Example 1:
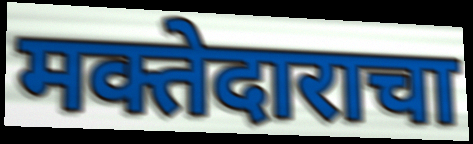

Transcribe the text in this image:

मक्तेदाराचा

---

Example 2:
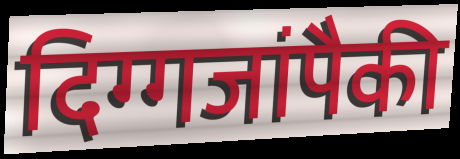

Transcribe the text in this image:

दिग्गजांपैकी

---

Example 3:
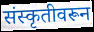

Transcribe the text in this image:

संस्कृतीवरून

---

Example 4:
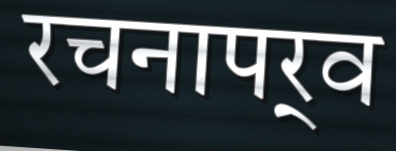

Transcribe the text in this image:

रचनापर्व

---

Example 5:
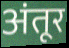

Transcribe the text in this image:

अंतूर